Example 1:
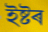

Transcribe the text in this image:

ইষ্টৰ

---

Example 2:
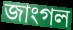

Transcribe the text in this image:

জাংগল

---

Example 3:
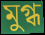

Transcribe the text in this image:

মুগ্ধ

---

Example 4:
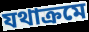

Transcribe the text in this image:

যথাক্ৰমে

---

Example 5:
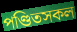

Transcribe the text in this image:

পণ্ডিতসকল